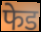
फेड